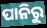
ପାନିରୁ